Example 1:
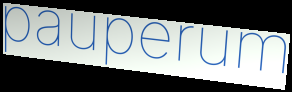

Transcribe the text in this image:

pauperum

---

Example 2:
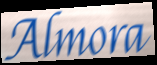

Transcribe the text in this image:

Almora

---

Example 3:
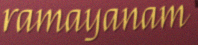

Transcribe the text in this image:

ramayanam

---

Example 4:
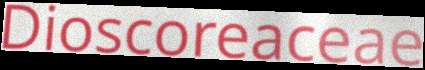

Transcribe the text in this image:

Dioscoreaceae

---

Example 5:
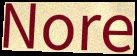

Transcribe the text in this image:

Nore